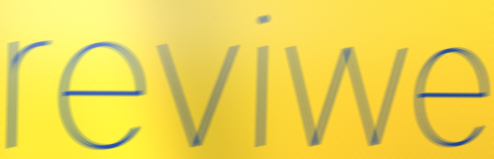
reviwe